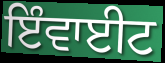
ਇੰਵਾਈਟ